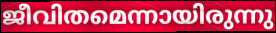
ജീവിതമെന്നായിരുന്നു